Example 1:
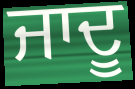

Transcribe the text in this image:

ਜਾਦੂ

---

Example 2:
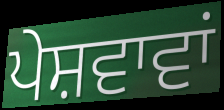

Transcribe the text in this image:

ਪੇਸ਼ਵਾਵਾਂ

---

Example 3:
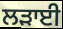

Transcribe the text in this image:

ਲੜਾਈ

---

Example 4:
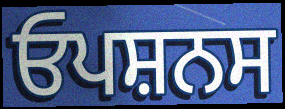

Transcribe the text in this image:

ਓਪਸ਼ਨਸ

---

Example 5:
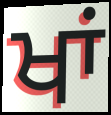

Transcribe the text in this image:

ਖਾਂ